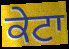
ਕੇਟਾ